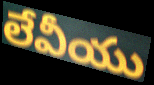
లేవీయు